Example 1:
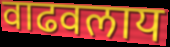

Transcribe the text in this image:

वाढवलाय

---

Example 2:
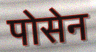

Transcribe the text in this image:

पोसेन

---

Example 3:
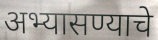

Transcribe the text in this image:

अभ्यासण्याचे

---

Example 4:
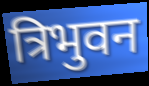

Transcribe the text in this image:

त्रिभुवन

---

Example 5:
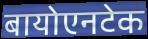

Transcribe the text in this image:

बायोएनटेक